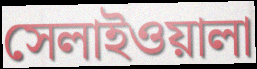
সেলাইওয়ালা